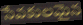
సేవకులమైన